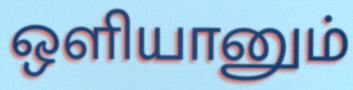
ஒளியானும்